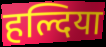
हल्दिया